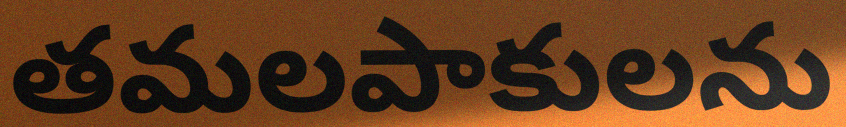
తమలపాకులను